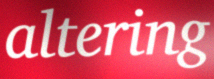
altering